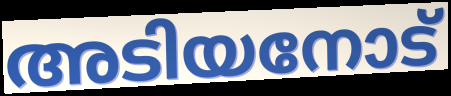
അടിയനോട്